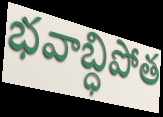
భవాబ్ధిపోత